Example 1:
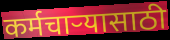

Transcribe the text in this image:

कर्मचाऱ्यासाठी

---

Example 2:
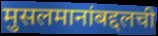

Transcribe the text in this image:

मुसलमानांबद्दलची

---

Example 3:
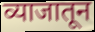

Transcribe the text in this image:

व्याजातून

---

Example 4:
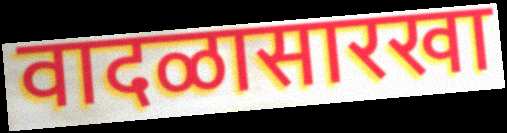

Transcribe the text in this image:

वादळासारखा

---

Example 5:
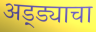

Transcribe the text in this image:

अड्ड्याचा